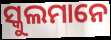
ସ୍କୁଲମାନେ